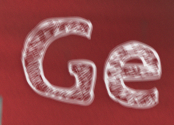
Ge